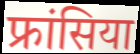
फ्रांसिया